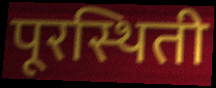
पूरस्थिती